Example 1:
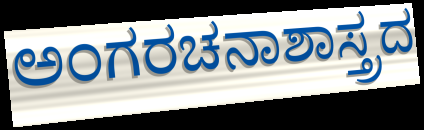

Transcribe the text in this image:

ಅಂಗರಚನಾಶಾಸ್ತ್ರದ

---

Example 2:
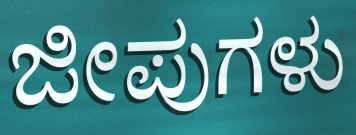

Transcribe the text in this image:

ಜೀಪುಗಳು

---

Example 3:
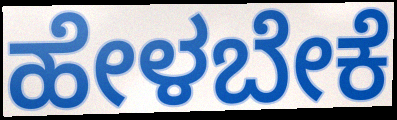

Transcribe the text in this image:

ಹೇಳಬೇಕೆ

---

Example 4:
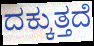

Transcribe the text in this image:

ದಕ್ಕುತ್ತದೆ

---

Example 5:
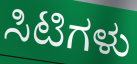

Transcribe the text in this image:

ಸಿಟಿಗಳು